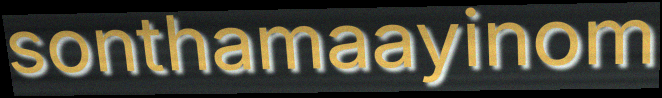
sonthamaayinom